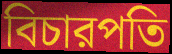
বিচারপতি